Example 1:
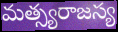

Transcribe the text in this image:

మత్స్యరాజస్య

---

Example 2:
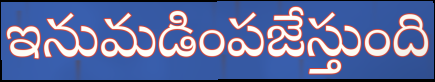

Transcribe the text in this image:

ఇనుమడింపజేస్తుంది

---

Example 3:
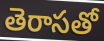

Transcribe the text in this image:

తెరాసతో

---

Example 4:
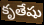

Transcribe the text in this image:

కృతేషు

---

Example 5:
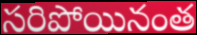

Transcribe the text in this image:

సరిపోయినంత